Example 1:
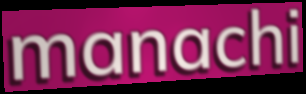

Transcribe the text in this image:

manachi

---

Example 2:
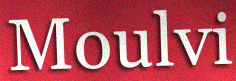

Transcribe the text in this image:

Moulvi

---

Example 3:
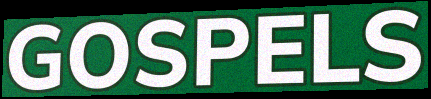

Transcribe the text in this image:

GOSPELS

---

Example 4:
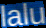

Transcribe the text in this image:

lalu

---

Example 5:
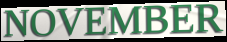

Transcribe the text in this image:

NOVEMBER